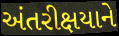
અંતરીક્ષયાને